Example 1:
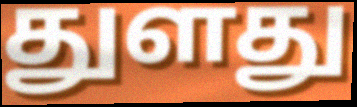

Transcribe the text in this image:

துளது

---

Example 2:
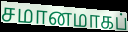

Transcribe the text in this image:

சமானமாகப்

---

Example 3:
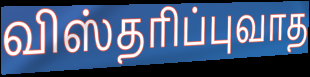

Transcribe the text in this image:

விஸ்தரிப்புவாத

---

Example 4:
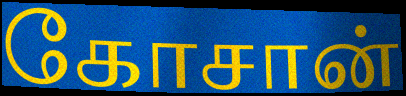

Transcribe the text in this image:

கோசான்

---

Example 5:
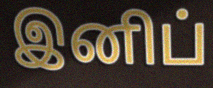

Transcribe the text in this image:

இனிப்